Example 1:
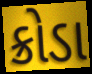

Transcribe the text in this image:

ક્રોડા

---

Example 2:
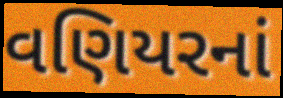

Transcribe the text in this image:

વણિયરનાં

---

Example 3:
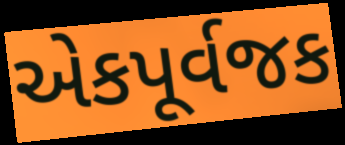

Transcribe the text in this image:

એકપૂર્વજક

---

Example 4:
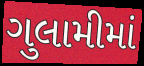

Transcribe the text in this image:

ગુલામીમાં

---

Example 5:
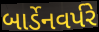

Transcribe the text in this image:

બાર્ડેનવર્પરે